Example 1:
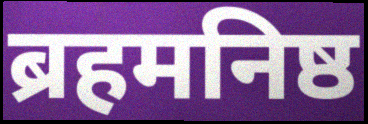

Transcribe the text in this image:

ब्रहमनिष्ठ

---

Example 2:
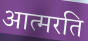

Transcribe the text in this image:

आत्मरति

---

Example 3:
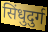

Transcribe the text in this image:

सिंधुदुर्ग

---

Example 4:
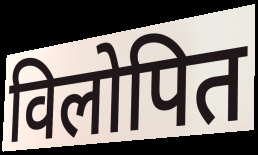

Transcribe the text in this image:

विलोपित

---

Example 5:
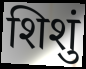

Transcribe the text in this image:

शिशुं